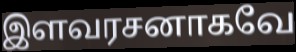
இளவரசனாகவே